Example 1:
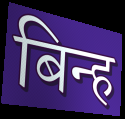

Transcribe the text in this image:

बिन्ह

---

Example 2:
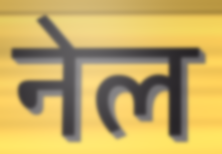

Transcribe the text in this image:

नेल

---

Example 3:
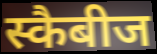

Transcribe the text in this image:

स्कैबीज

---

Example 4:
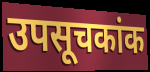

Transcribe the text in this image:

उपसूचकांक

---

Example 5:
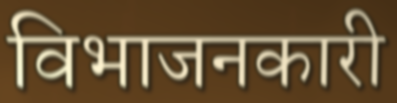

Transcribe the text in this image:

विभाजनकारी